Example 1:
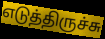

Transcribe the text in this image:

எடுத்திருச்சு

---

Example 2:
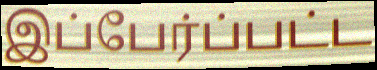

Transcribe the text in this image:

இப்பேர்ப்பட்ட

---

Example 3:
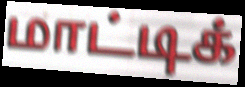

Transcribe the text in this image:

மாட்டிக்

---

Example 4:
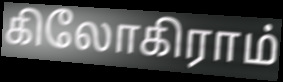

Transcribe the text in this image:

கிலோகிராம்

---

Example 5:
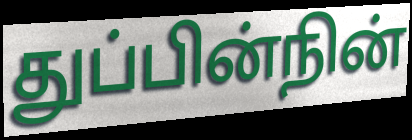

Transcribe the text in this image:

துப்பின்நின்